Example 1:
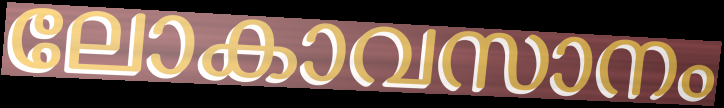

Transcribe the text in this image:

ലോകാവസാനം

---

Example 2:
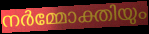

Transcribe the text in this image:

നർമ്മോക്തിയും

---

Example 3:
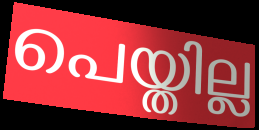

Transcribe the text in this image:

പെയ്തില്ല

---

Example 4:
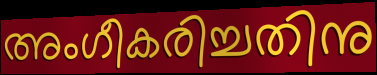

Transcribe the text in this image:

അംഗീകരിച്ചതിനു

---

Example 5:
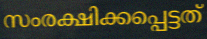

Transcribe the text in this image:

സംരക്ഷിക്കപ്പെട്ടത്